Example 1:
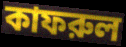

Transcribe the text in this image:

কাফরুল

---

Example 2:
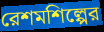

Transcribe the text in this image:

রেশমশিল্পের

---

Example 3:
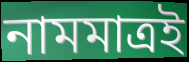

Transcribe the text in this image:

নামমাত্রই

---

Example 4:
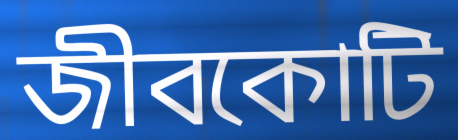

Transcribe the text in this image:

জীবকোটি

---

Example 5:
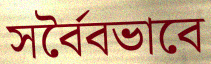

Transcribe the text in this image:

সর্বৈবভাবে